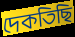
দেকতিছি